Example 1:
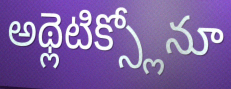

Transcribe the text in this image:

అథ్లెటిక్స్లోనూ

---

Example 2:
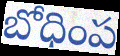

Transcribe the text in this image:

బోధింప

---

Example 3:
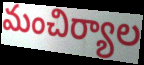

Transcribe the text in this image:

మంచిర్యాల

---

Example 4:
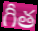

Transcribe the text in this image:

గీత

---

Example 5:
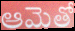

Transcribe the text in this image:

ఆమెతో